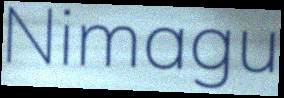
Nimagu